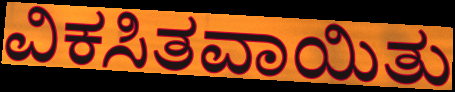
ವಿಕಸಿತವಾಯಿತು